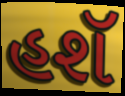
હશૅ